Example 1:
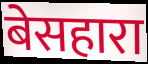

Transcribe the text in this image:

बेसहारा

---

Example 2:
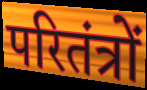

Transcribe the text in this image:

परितंत्रों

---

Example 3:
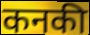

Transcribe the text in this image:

कनकी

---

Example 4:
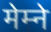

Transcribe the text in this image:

मेम्ने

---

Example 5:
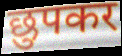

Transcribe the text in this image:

छुपकर